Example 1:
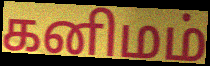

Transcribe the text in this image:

கனிமம்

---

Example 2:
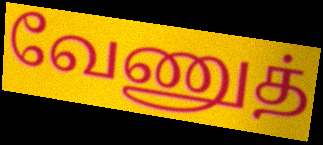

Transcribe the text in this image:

வேணுத்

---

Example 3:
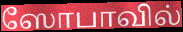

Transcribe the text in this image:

ஸோபாவில்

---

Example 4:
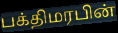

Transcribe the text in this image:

பக்திமரபின்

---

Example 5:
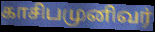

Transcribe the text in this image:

காசிபமுனிவர்